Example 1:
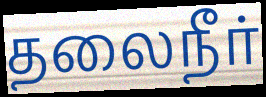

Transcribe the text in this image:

தலைநீர்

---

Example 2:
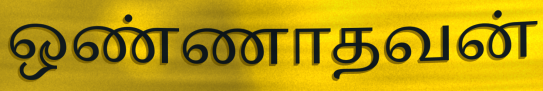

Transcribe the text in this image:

ஒண்ணாதவன்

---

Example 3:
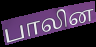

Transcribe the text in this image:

பாலின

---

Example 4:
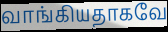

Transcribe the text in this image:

வாங்கியதாகவே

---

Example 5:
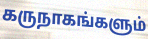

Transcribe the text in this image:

கருநாகங்களும்